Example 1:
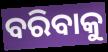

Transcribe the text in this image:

ବରିବାକୁ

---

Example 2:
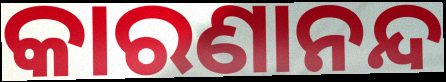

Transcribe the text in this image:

କାରଣାନନ୍ଦ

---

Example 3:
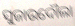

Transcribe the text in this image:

ସୁଜାଉଦୌଲା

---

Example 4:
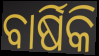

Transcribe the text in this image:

ବାର୍ଷିକି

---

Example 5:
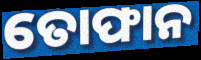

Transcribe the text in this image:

ତୋଫାନ